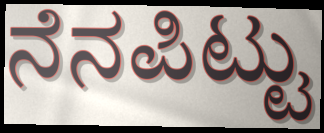
ನೆನಪಿಟ್ಟು